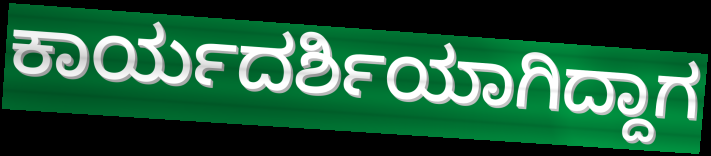
ಕಾರ್ಯದರ್ಶಿಯಾಗಿದ್ದಾಗ